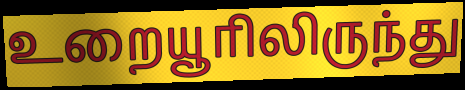
உறையூரிலிருந்து